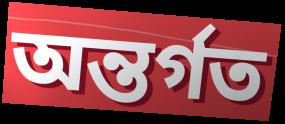
অন্তর্গত